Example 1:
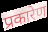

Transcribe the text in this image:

प्रकारेण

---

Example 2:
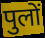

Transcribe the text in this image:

पुलों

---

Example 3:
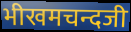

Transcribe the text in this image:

भीखमचन्दजी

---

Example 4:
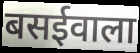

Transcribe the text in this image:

बसईवाला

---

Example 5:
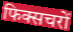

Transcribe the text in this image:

फिक्सचरों